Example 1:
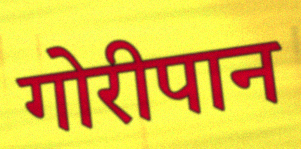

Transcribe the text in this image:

गोरीपान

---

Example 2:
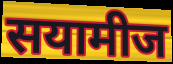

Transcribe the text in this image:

सयामीज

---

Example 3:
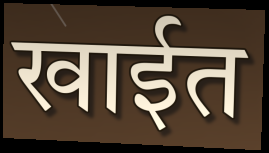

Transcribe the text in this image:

खाईत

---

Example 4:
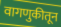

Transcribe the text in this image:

वागणुकीतून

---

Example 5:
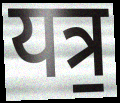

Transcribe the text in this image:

यत्र॒